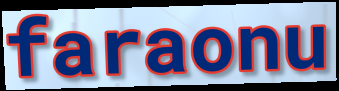
faraonu